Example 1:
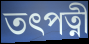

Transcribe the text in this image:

তৎপত্নী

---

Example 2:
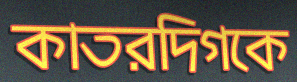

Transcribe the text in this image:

কাতরদিগকে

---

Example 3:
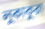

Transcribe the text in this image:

লুকাকুরা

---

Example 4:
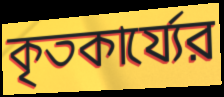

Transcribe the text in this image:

কৃতকার্য্যের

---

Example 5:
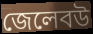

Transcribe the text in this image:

জেলেবউ